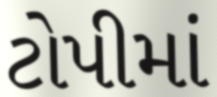
ટોપીમાં